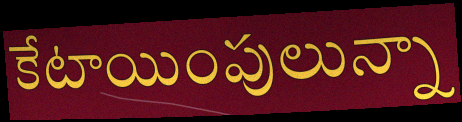
కేటాయింపులున్నా